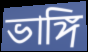
ভাঙ্গি